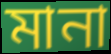
মানা